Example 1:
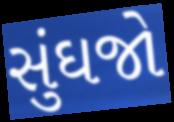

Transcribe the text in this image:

સુંઘજો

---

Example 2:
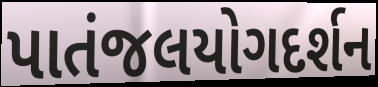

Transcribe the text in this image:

પાતંજલયોગદર્શન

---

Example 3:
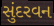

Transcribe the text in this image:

સુંદરવન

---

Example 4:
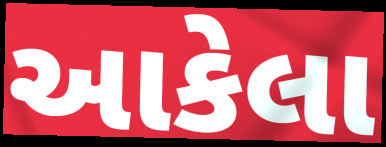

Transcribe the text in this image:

આકેલા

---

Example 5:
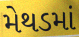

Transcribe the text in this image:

મેથડમાં